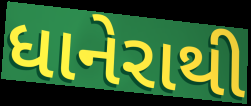
ધાનેરાથી